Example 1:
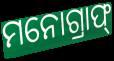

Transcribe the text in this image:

ମନୋଗ୍ରାଫ୍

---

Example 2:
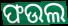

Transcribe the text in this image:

ଫଉଲ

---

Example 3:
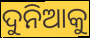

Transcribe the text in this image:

ଦୁନିଆକୁ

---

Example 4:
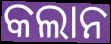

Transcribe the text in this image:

କଲାନ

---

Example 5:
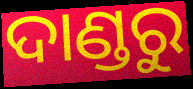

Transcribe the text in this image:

ଦାଣ୍ଡରୁ